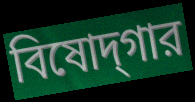
বিষোদ্‌গার